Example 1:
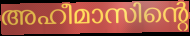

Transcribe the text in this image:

അഹീമാസിന്റെ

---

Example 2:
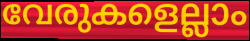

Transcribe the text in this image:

വേരുകളെല്ലാം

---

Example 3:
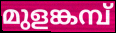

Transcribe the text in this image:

മുളങ്കമ്പ്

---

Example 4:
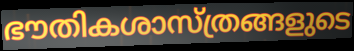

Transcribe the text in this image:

ഭൗതികശാസ്ത്രങ്ങളുടെ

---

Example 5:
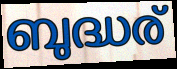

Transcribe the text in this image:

ബുദ്ധര്